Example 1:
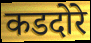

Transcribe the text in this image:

कडदोरे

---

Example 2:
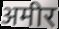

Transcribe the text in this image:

अमीर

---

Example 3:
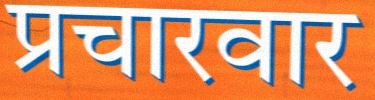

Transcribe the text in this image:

प्रचारवार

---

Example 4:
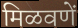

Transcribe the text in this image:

मिळवणें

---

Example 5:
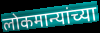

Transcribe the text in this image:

लोकमान्यांच्या